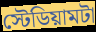
স্টেডিয়ামটা